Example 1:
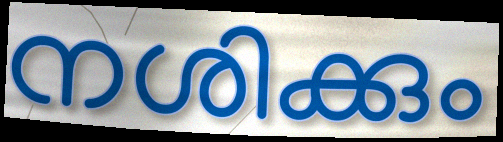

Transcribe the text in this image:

നശിക്കും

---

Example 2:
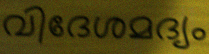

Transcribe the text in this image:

വിദേശമദ്യം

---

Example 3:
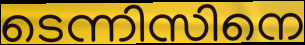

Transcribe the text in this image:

ടെന്നിസിനെ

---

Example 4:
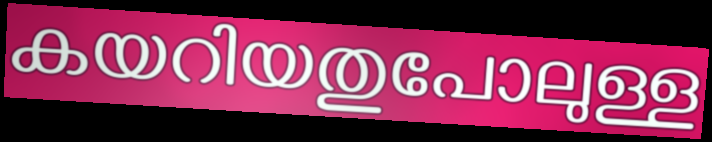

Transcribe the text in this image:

കയറിയതുപോലുള്ള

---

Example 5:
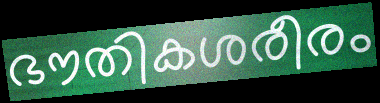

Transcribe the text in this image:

ഭൗതികശരീരം